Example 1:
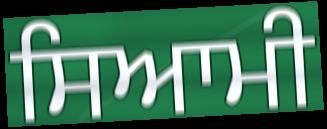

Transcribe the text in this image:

ਸਿਆਮੀ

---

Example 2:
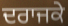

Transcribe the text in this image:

ਦਰਾਜਕੇ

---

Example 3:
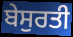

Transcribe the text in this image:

ਬੇਸੁਰਤੀ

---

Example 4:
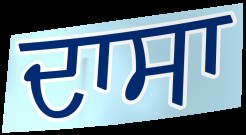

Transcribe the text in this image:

ਦਾਸਾ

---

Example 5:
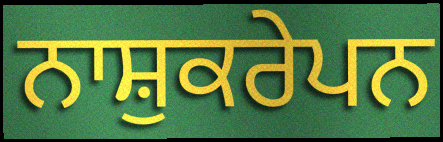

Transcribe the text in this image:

ਨਾਸ਼ੁਕਰੇਪਨ